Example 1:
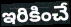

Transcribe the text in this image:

ఇరికించే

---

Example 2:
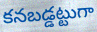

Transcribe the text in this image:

కనబడ్డట్టుగా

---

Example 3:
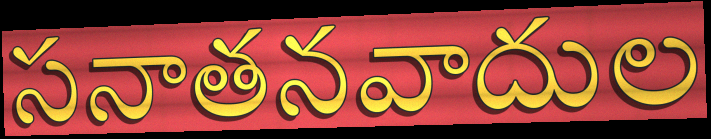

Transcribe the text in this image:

సనాతనవాదుల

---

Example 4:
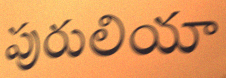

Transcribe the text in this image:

పురులియా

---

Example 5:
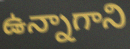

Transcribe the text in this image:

ఉన్నాగాని